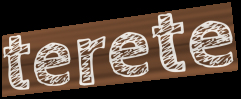
terete